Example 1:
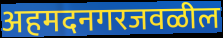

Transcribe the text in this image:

अहमदनगरजवळील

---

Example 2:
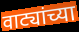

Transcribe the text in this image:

वाट्यांच्या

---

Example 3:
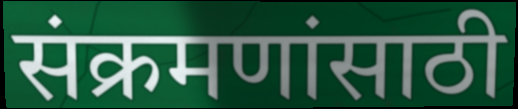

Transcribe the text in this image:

संक्रमणांसाठी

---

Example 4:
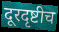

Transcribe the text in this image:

दूरदृष्टीच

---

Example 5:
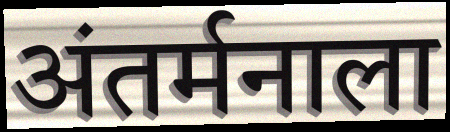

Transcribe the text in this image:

अंतर्मनाला